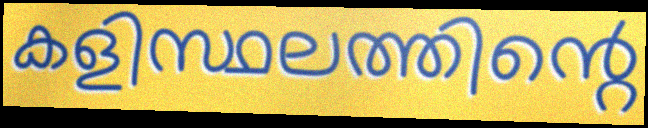
കളിസ്ഥലത്തിന്റെ